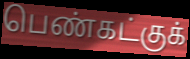
பெண்கட்குக்